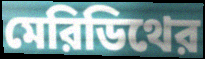
মেরিডিথের